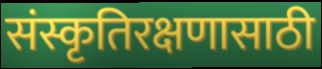
संस्कृतिरक्षणासाठी